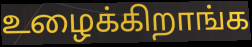
உழைக்கிறாங்க